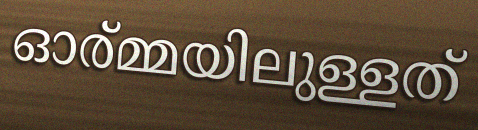
ഓര്മ്മയിലുള്ളത്